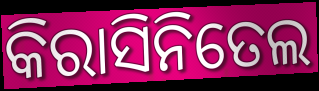
କିରାସିନିତେଲ